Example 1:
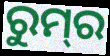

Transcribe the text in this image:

ରୁମ୍‍ର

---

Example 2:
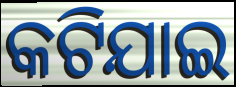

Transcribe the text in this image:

କଟିଯାଇ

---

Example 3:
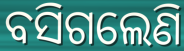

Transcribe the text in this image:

ବସିଗଲେଣି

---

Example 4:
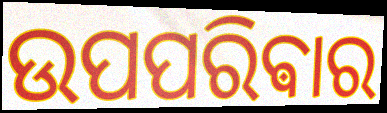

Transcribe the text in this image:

ଉପପରିଵାର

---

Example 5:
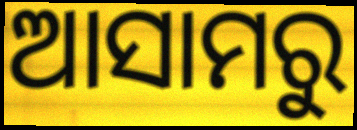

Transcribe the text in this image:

ଆସାମରୁ